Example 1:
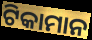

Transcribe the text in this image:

ଟିକାମାନ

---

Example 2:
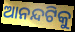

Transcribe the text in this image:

ଆନନ୍ଦଟିକୁ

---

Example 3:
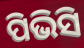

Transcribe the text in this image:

ପିଭିସି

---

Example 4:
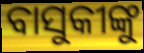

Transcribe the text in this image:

ବାସୁକୀଙ୍କୁ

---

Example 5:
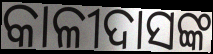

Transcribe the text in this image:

କାଳୀଦାସଙ୍କ